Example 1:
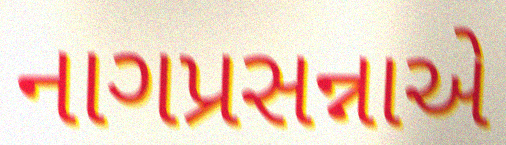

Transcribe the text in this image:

નાગપ્રસન્નાએ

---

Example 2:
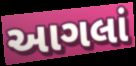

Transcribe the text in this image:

આગલાં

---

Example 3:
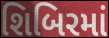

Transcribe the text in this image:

શિબિરમાં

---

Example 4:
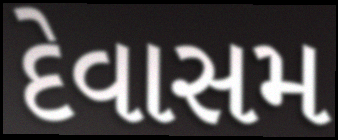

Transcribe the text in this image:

દેવાસમ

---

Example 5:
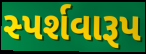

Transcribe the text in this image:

સ્પર્શવારૂપ